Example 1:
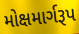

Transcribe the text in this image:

મોક્ષમાર્ગરૂપ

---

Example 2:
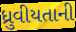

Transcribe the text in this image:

ધ્રુવીયતાની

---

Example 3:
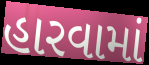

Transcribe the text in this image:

હારવામાં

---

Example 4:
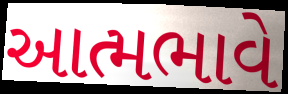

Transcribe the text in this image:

આત્મભાવે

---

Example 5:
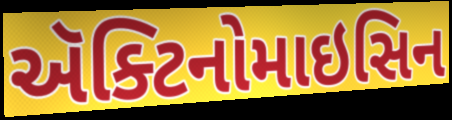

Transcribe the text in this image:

ઍક્ટિનોમાઇસિન